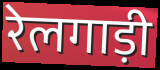
रेलगाड़ी